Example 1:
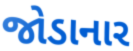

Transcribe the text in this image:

જોડાનાર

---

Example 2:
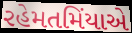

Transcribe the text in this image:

રહેમતમિંયાએ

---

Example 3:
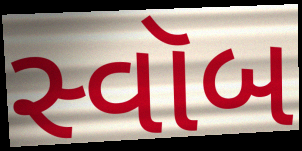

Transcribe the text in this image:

સ્વૉબ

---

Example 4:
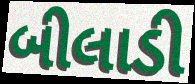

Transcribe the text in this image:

બીલાડી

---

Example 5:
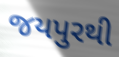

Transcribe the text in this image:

જયપુરથી